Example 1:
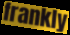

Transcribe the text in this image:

frankly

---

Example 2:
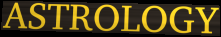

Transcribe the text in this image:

ASTROLOGY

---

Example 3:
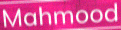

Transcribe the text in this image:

Mahmood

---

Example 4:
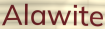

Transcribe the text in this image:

Alawite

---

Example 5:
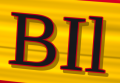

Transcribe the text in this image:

BIl